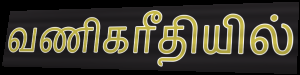
வணிகரீதியில்